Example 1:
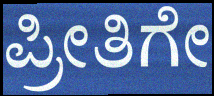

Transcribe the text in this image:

ಪ್ರೀತಿಗೇ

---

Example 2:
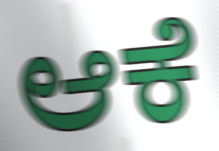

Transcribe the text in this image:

ಆಕೆ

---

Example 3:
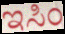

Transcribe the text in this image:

ಇಸಿಂ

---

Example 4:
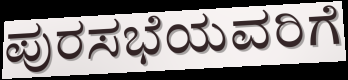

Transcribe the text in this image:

ಪುರಸಭೆಯವರಿಗೆ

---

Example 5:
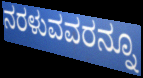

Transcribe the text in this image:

ನರಳುವವರನ್ನೂ